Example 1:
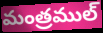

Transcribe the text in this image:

మంత్రముల్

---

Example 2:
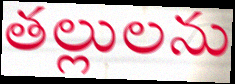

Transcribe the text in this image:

తల్లులను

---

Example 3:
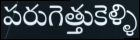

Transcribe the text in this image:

పరుగెత్తుకెళ్ళి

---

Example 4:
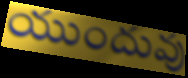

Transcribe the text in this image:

యుందువు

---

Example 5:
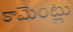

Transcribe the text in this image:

కామెంట్లు